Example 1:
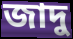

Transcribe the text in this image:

জাদু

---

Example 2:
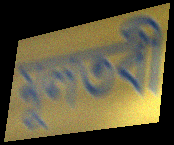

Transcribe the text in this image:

মূলতবী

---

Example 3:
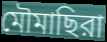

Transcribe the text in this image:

মৌমাছিরা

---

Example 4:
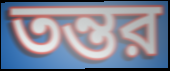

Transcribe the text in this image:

তন্তর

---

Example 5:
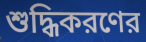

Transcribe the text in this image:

শুদ্ধিকরণের